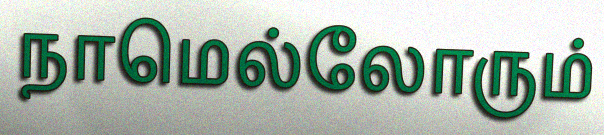
நாமெல்லோரும்